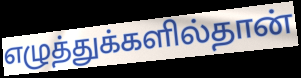
எழுத்துக்களில்தான்